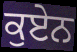
ਕੁਏਨ